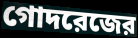
গোদরেজের